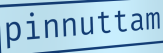
pinnuttam